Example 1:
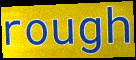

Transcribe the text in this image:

rough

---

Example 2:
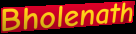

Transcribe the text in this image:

Bholenath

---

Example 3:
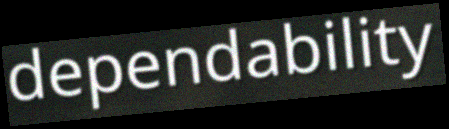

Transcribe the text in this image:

dependability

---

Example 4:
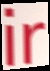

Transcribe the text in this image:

ir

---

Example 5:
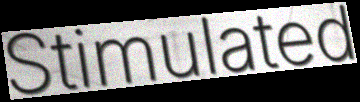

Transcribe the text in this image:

Stimulated